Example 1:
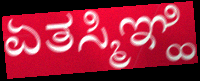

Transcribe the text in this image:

ಏತಸ್ಮಿಞ್ಹಿ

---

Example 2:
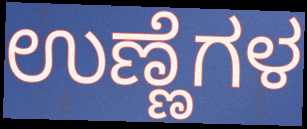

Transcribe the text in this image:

ಉಣ್ಣೆಗಳ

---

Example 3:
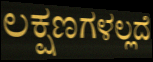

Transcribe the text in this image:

ಲಕ್ಷಣಗಳಲ್ಲದೆ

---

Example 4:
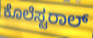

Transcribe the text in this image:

ಕೊಲೆಸ್ಟರಾಲ್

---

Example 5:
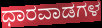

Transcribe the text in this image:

ಧಾರವಾಡಗಳ